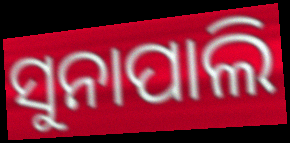
ସୁନାପାଲି